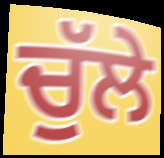
ਚੁੱਲੇ